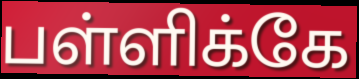
பள்ளிக்கே